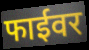
फाईवर